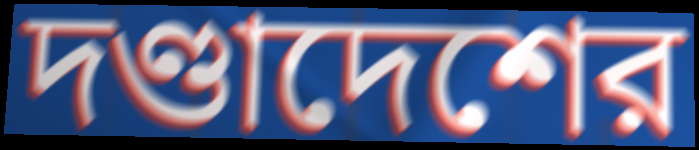
দণ্ডাদেশের